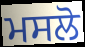
ਮਸਲੋ